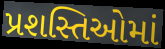
પ્રશસ્તિઓમાં